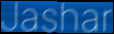
Jashar